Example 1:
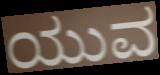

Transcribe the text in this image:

ಯುವ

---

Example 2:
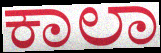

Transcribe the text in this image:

ಕಾಲಾ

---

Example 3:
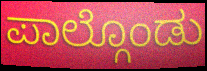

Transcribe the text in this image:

ಪಾಲ್ಗೊಂಡು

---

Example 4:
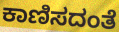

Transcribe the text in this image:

ಕಾಣಿಸದಂತೆ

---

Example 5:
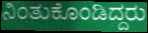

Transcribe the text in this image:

ನಿಂತುಕೊಂಡಿದ್ದರು